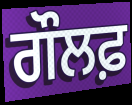
ਗੌਲਫ਼